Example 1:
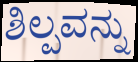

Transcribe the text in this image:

ಶಿಲ್ಪವನ್ನು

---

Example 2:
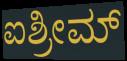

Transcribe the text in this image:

ಐಶ್ರೀಮ್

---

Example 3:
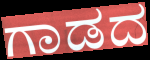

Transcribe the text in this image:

ಗಾಡದ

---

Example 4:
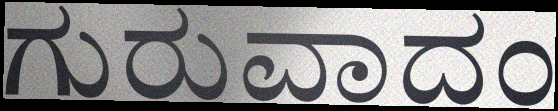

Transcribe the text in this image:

ಗುರುವಾದಂ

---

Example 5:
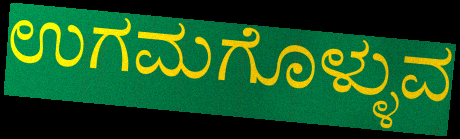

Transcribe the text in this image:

ಉಗಮಗೊಳ್ಳುವ